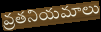
వ్రతనియమాలు